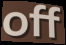
off